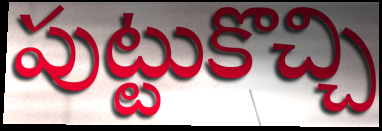
పుట్టుకొచ్చి